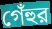
গেঁহুর